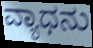
ವ್ಯಾಧನು